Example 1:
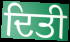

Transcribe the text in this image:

ਦਿਤੀ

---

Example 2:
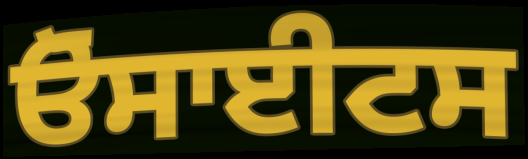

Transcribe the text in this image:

ਓੋਸਾਈਟਸ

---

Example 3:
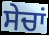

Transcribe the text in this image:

ਸੇਚਾਂ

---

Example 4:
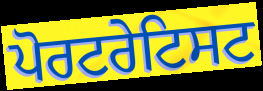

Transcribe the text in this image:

ਪੋਰਟਰੇਟਿਸਟ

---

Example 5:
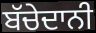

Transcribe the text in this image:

ਬੱਚੇਦਾਨੀ